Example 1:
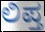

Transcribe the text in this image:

ಲಿಪ್ತ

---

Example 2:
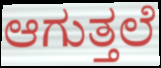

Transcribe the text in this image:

ಆಗುತ್ತಲೆ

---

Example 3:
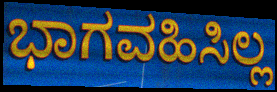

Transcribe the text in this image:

ಭಾಗವಹಿಸಿಲ್ಲ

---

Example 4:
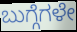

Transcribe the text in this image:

ಬುಗ್ಗೆಗಳೇ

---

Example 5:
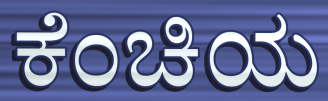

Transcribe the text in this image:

ಕೆಂಚಿಯ